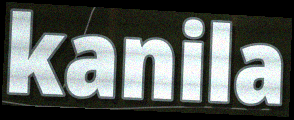
kanila